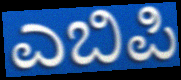
ಎಬಿಪಿ